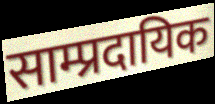
साम्प्रदायिक